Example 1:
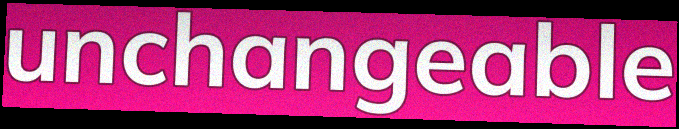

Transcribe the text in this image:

unchangeable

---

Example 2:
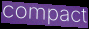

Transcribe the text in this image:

compact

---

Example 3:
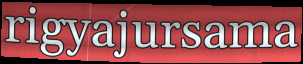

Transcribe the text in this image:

rigyajursama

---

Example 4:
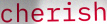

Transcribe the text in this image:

cherish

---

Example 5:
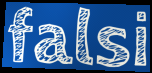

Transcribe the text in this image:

falsi